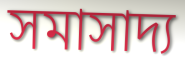
সমাসাদ্য